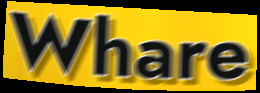
Whare